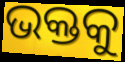
ଭକ୍ତକୁ